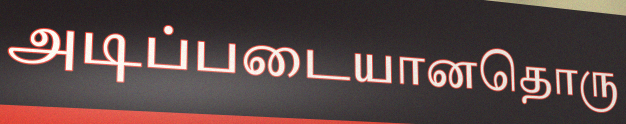
அடிப்படையானதொரு